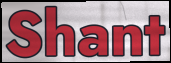
Shant